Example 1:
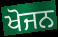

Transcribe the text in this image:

ਖੋਜਨ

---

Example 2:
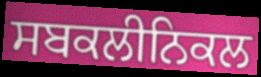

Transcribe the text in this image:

ਸਬਕਲੀਨਿਕਲ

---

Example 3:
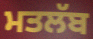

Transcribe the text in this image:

ਮਤਲੱਬ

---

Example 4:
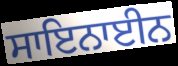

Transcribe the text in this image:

ਸਾਇਨਾਈਨ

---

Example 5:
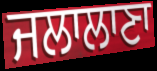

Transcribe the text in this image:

ਜਲਾਲਾਣਾ